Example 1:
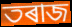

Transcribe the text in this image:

তৰাজ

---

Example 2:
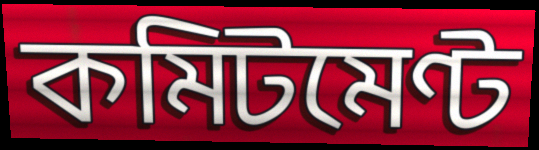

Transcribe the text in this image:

কমিটমেণ্ট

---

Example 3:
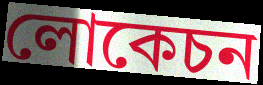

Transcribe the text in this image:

লোকেচন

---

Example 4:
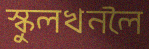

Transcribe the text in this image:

স্কুলখনলৈ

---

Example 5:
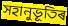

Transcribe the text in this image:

সহানুভূতিৰ